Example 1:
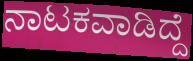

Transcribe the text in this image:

ನಾಟಕವಾಡಿದ್ದೆ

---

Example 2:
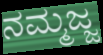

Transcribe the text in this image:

ನಮ್ಮಜ್ಜ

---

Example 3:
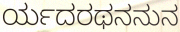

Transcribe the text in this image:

ರ್ಯದರಥನನುನ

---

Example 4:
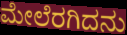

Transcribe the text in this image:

ಮೇಲೆರಗಿದನು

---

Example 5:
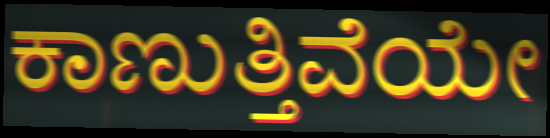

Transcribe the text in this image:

ಕಾಣುತ್ತಿವೆಯೇ